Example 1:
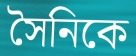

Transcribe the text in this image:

সৈনিকে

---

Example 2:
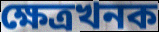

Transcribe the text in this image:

ক্ষেত্ৰখনক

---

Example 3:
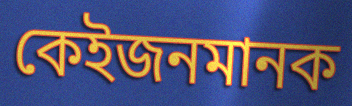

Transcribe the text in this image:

কেইজনমানক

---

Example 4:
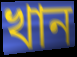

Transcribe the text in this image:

খান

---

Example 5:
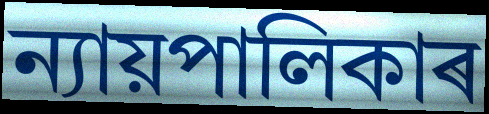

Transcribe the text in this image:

ন্যায়পালিকাৰ